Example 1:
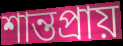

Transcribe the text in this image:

শান্তপ্রায়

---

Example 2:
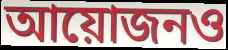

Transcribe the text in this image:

আয়োজনও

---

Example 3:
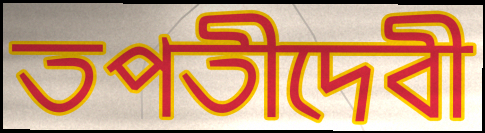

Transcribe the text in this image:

তপতীদেবী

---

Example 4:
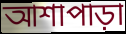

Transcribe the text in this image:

আশাপাড়া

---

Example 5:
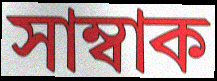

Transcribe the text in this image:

সাম্বাক